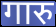
गारु